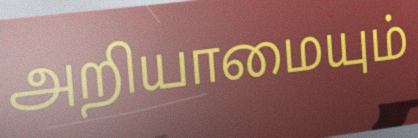
அறியாமையும்